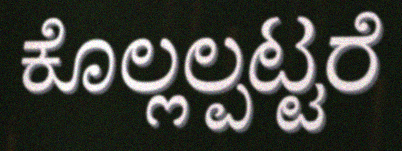
ಕೊಲ್ಲಲ್ಪಟ್ಟರೆ